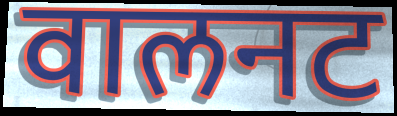
वालनट